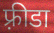
फ़्रीडा